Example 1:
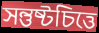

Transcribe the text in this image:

সন্তুষ্টচিত্তে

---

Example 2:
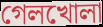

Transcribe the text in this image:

গেলখোলা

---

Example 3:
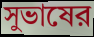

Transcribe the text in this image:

সুভাষের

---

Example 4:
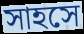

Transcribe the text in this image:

সাহসে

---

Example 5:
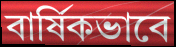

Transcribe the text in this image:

বার্ষিকভাবে